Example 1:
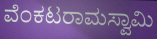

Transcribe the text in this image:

ವೆಂಕಟರಾಮಸ್ವಾಮಿ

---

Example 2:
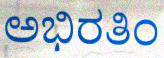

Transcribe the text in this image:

ಅಭಿರತಿಂ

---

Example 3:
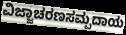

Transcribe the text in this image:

ವಿಜ್ಜಾಚರಣಸಮ್ಪದಾಯ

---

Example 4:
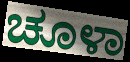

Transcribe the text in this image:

ಚೂಳಾ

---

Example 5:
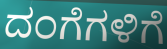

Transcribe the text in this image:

ದಂಗೆಗಳಿಗೆ